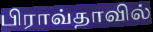
பிராவ்தாவில்